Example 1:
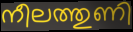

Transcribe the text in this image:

നീലത്തുണി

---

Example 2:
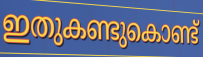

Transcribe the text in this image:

ഇതുകണ്ടുകൊണ്ട്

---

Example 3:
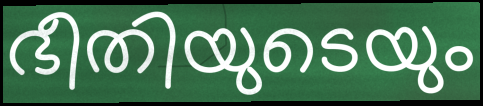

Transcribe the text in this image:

ഭീതിയുടെയും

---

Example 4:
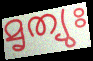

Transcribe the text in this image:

മൃത്യുഃ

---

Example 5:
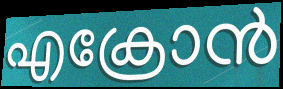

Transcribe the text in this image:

എക്രോൻ